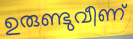
ഉരുണ്ടുവീണ്